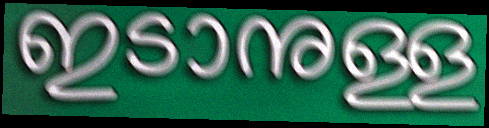
ഇടാനുള്ള